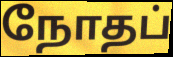
நோதப்